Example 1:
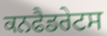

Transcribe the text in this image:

ਕਨਫੈਡਰੇਟਸ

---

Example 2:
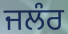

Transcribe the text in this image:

ਜਲੰਰ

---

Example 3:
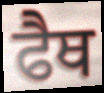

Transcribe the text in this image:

ਫੈਥ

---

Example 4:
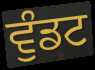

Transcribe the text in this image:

ਵੁੰਡਟ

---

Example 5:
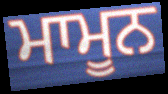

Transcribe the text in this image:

ਮਾਮੂਨ